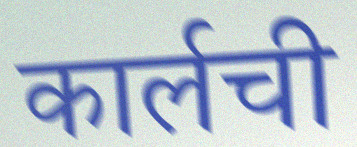
कार्लची